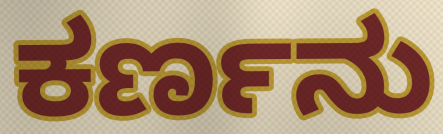
ಕರ್ಣನು